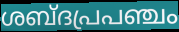
ശബ്ദപ്രപഞ്ചം